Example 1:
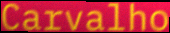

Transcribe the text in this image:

Carvalho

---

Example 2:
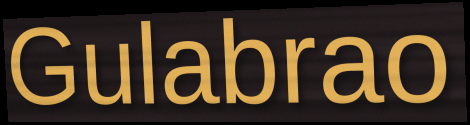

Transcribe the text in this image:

Gulabrao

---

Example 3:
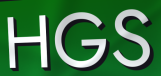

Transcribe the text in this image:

HGS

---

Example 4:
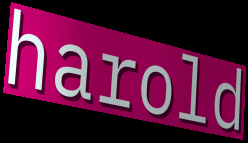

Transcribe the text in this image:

harold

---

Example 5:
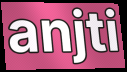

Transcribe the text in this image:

anjti